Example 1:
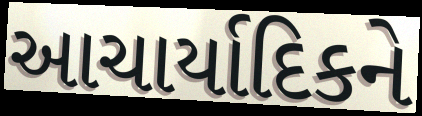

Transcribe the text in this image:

આચાર્યાદિકને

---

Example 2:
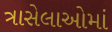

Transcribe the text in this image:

ત્રાસેલાઓમાં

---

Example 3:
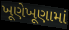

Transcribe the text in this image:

ખૂણેખૂણામાં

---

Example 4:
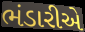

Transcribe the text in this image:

ભંડારીએ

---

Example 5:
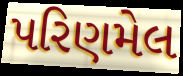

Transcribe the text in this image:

પરિણમેલ